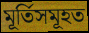
মূৰ্তিসমূহত